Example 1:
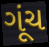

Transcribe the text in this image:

ગૂંચ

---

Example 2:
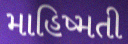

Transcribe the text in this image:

માહિષ્મતી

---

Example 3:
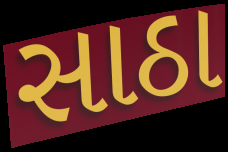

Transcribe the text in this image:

સાઠા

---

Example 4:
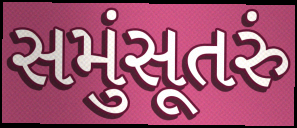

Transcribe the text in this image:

સમુંસૂતરું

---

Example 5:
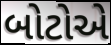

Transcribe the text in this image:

બોટોએ